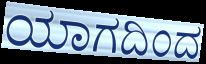
ಯಾಗದಿಂದ